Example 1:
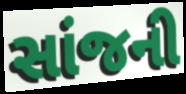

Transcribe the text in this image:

સાંજની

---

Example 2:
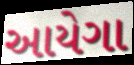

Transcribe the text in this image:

આયેગા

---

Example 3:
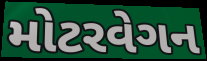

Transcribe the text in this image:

મોટરવેગન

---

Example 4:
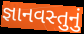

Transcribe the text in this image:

જ્ઞાનવસ્તુનું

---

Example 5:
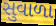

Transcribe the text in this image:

સુવાળા